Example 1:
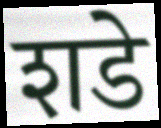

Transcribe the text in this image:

शडे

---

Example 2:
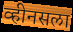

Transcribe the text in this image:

व्हीनसला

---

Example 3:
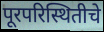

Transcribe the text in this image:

पूरपरिस्थितीचे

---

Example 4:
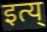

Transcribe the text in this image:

इत्य्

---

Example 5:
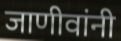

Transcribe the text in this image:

जाणीवांनी